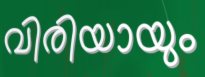
വിരിയായും